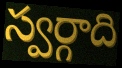
స్వర్గాది